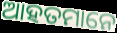
ଆହତମାନେ